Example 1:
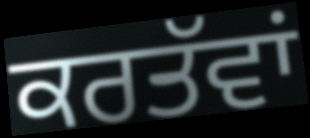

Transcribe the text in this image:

ਕਰਤੱਵਾਂ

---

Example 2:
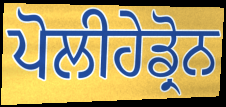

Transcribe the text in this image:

ਪੋਲੀਹੇਡ੍ਰੋਨ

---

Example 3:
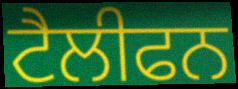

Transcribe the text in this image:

ਟੈਲੀਫਨ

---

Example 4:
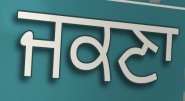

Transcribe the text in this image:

ਜਕਣਾ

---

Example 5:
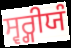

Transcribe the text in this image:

ਸ੍ਵਰ੍ਗੀਯੰ